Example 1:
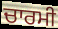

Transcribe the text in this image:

ਚਾਰਮੀ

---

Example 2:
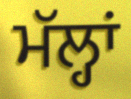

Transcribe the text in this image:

ਮੱਲ੍ਹਾਂ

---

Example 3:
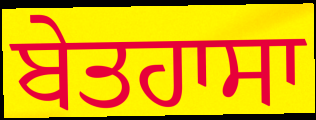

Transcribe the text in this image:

ਬੇਤਹਾਸਾ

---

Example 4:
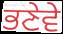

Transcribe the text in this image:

ਭਣੇਵੇ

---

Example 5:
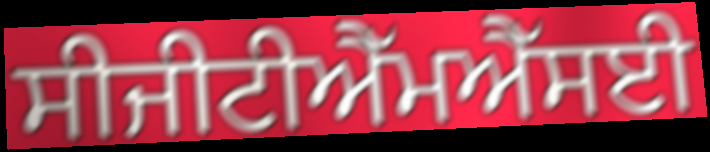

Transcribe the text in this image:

ਸੀਜੀਟੀਐੱਮਐੱਸਈ